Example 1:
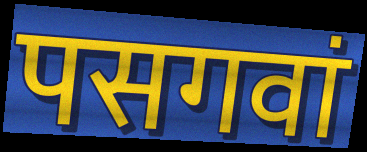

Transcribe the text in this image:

पसगवां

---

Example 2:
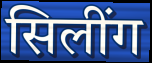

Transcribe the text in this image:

सिलींग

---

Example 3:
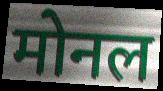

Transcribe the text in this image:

मोनल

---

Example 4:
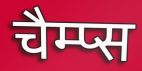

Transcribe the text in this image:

चैम्प्स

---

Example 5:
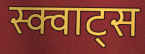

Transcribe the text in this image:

स्क्वाट्स